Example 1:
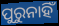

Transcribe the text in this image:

ପୁରୁନାହିଁ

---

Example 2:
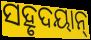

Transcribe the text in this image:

ସହୃଦୟାନ୍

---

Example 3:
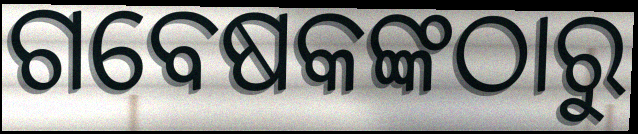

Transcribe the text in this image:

ଗବେଷକଙ୍କଠାରୁ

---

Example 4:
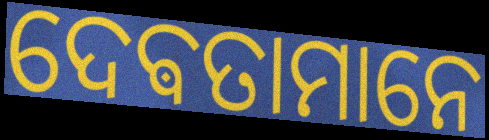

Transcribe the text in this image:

ଦେଵତାମାନେ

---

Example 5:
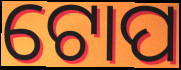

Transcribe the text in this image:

ଟୋପ